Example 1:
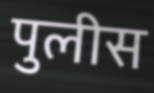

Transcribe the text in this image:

पुलीस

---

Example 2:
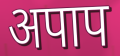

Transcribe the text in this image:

अपाप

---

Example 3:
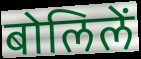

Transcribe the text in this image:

बोलिलें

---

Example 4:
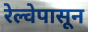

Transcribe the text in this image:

रेल्वेपासून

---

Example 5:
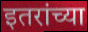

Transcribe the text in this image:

इतरांच्या